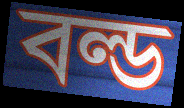
বল্ড